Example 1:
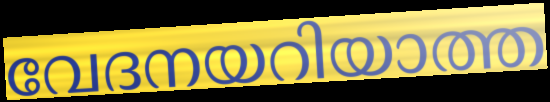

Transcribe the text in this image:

വേദനയറിയാത്ത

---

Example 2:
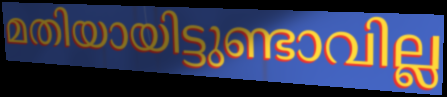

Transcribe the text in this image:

മതിയായിട്ടുണ്ടാവില്ല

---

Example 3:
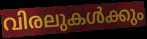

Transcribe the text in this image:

വിരലുകൾക്കും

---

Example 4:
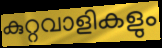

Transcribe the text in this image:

കുറ്റവാളികളും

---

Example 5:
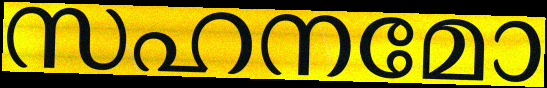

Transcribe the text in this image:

സഹനമോ